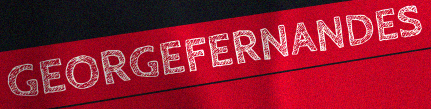
GEORGEFERNANDES